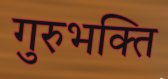
गुरुभक्ति